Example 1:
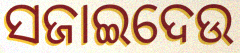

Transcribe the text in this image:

ସଜାଇଦେଉ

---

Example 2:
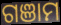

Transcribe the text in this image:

ଗଞାମ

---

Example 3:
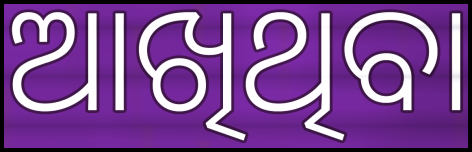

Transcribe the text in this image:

ଆଖିଥିବା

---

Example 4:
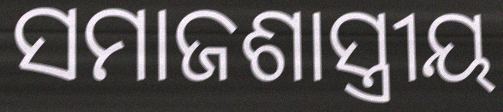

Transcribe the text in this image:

ସମାଜଶାସ୍ତ୍ରୀୟ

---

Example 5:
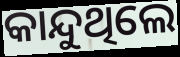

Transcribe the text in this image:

କାନ୍ଦୁଥିଲେ